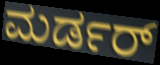
ಮರ್ಡರ್